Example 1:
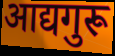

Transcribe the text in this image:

आद्यगुरू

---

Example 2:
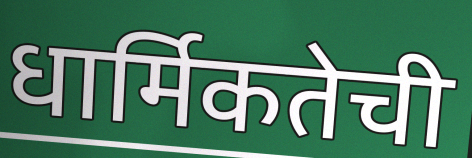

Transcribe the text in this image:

धार्मिकतेची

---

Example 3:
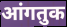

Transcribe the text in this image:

आंगतुक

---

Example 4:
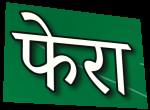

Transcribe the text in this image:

फेरा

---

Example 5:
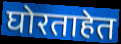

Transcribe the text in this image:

घोरताहेत